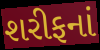
શરીફનાં